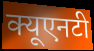
क्यूएनटी